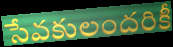
సేవకులందరికీ